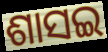
ଶାସଇ